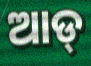
ଆଡ୍